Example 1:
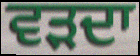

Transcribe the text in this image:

ਵੜਦਾ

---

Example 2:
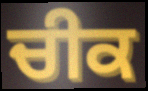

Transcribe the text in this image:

ਚੀਕ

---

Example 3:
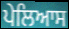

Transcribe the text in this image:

ਪੇਲਿਆਸ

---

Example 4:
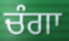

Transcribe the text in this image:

ਚੰਗਾ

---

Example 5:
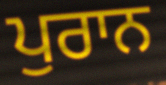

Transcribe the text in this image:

ਪੁਰਾਨ